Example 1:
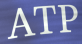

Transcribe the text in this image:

ATP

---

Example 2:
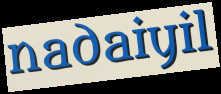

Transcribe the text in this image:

nadaiyil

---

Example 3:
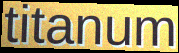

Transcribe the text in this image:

titanum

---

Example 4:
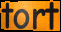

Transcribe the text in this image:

tort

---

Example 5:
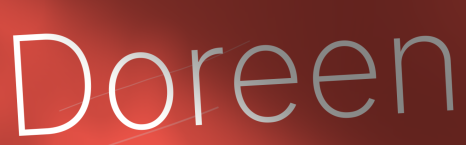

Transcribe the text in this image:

Doreen